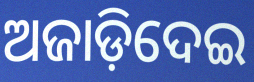
ଅଜାଡ଼ିଦେଇ